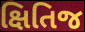
ક્ષિતિજ